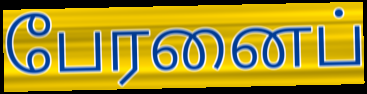
பேரனைப்